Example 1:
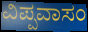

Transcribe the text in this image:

ವಿಪ್ಪವಾಸಂ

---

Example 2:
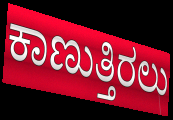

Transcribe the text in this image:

ಕಾಣುತ್ತಿರಲು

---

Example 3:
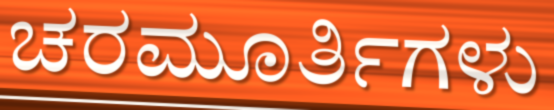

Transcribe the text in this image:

ಚರಮೂರ್ತಿಗಳು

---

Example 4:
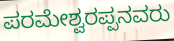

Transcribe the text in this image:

ಪರಮೇಶ್ವರಪ್ಪನವರು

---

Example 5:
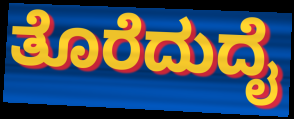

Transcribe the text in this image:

ತೊರೆದುದೈ